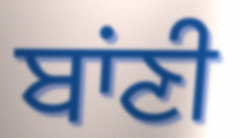
ਬਾਂਣੀ